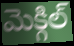
మెక్గిల్